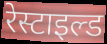
रेस्टाइल्ड